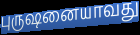
புருஷனையாவது